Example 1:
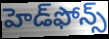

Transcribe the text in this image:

హెడ్‌ఫోన్స్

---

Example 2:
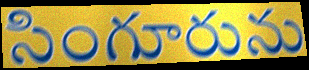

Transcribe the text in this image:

సింగూరును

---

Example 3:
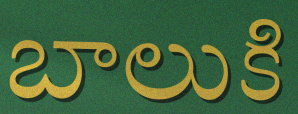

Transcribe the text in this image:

బాలుకి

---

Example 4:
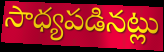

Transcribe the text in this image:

సాధ్యపడినట్లు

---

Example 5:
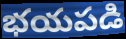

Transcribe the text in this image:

భయపడి